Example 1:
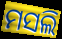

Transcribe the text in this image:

ମସଲି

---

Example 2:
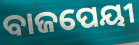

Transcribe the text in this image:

ବାଜପେୟୀ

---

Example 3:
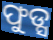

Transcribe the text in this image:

ଫୁଡ୍ସ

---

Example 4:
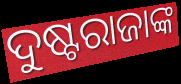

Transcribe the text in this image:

ଦୁଷ୍ଟରାଜାଙ୍କ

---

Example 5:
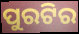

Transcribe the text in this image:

ପୁରଟିର